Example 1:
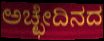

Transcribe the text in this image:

ಅಚ್ಛೇದಿನದ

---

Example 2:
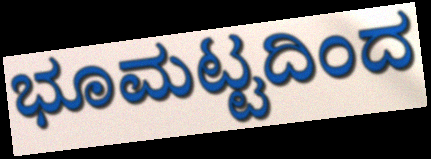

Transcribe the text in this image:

ಭೂಮಟ್ಟದಿಂದ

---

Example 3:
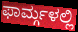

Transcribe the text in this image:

ಫಾರ್ಮ್ಗಳಲ್ಲಿ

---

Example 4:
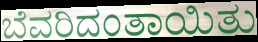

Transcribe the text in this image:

ಬೆವರಿದಂತಾಯಿತು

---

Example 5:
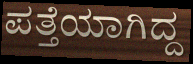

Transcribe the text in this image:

ಪತ್ತೆಯಾಗಿದ್ದ